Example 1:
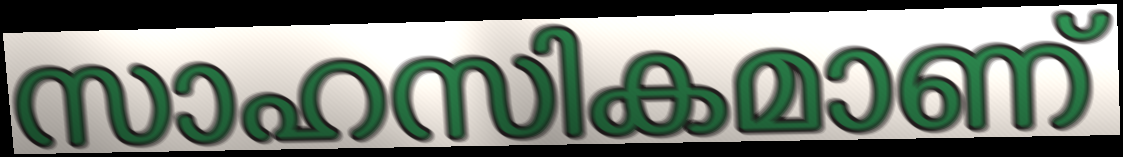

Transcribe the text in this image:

സാഹസികമാണ്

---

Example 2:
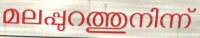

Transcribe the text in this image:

മലപ്പുറത്തുനിന്ന്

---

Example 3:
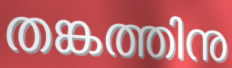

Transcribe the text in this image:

തങ്കത്തിനു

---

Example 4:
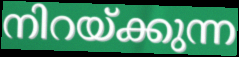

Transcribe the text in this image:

നിറയ്ക്കുന്ന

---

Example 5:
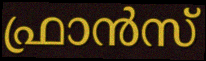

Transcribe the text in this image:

ഫ്രാൻസ്